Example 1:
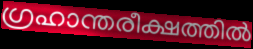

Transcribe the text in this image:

ഗ്രഹാന്തരീക്ഷത്തിൽ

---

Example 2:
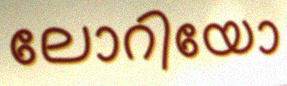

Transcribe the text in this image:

ലോറിയോ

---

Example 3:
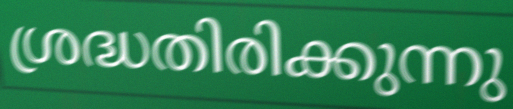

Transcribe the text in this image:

ശ്രദ്ധതിരിക്കുന്നു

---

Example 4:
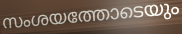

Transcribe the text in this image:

സംശയത്തോടെയും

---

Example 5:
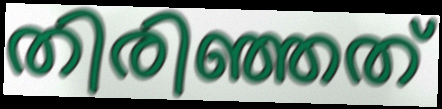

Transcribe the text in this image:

തിരിഞ്ഞത്